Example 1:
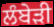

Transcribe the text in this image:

ਲੰਬੇੜੀ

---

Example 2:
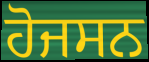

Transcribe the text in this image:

ਹੋਜਸਨ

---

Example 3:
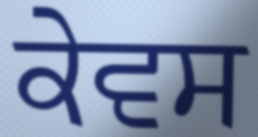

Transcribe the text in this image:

ਕੇਵਸ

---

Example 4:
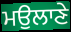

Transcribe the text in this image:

ਮਉਲਾਣੇ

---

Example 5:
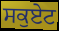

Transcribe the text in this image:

ਸਕੁਏਟ